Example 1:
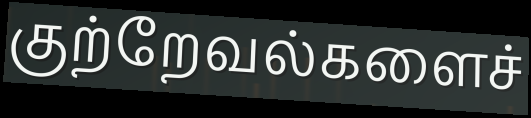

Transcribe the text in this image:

குற்றேவல்களைச்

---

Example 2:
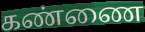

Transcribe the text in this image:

கண்ணை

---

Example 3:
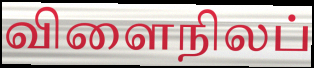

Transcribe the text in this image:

விளைநிலப்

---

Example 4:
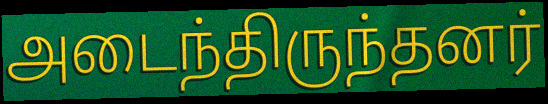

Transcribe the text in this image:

அடைந்திருந்தனர்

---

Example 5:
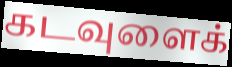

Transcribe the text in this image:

கடவுளைக்